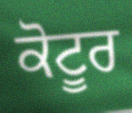
ਕੋਟੂਰ